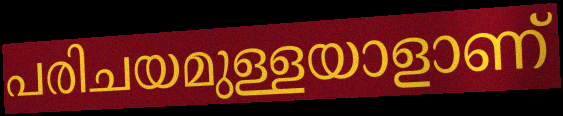
പരിചയമുള്ളയാളാണ്